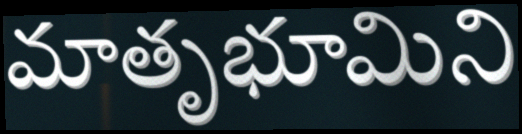
మాతృభూమిని